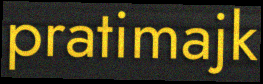
pratimajk